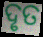
ଦୃତ